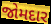
જોમદાર